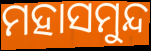
ମହାସମୁନ୍ଦ